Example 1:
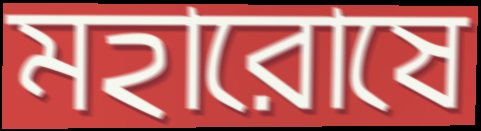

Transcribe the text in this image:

মহারোষে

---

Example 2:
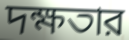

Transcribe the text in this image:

দক্ষতার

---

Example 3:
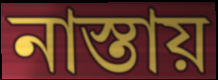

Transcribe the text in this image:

নাস্তায়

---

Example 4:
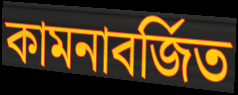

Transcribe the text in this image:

কামনাবর্জিত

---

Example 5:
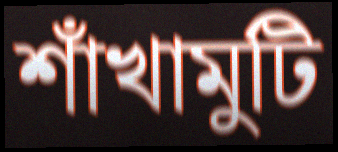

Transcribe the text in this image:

শাঁখামুটি